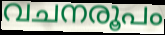
വചനരൂപം